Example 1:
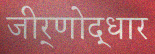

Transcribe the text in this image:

जीर्णोद्धार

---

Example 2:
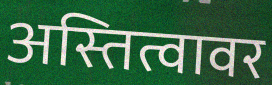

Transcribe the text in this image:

अस्तित्वावर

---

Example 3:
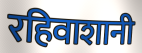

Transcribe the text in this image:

रहिवाशानी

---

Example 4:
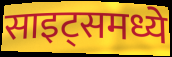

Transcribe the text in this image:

साइट्समध्ये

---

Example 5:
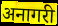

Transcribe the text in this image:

अनागरी